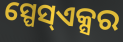
ସ୍ପେସ୍ଏକ୍ସର